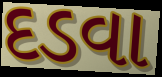
દડવા